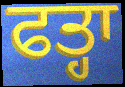
ਫਤ੍ਹਾ